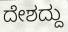
ದೇಶದ್ದು